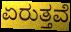
ಏರುತ್ತವೆ